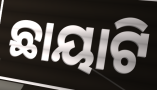
ଛାୟାଟି